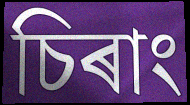
চিৰাং